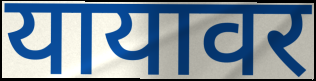
यायावर